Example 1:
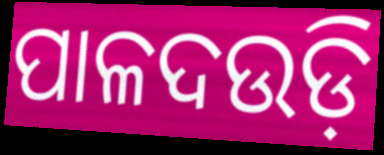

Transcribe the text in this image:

ପାଳଦଉଡ଼ି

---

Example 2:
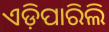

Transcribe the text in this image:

ଏଡ଼ିପାରିଲି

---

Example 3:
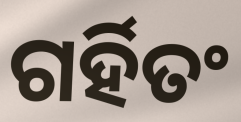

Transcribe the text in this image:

ଗର୍ହିତଂ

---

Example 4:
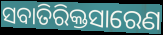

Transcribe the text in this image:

ସବାତିରିକ୍ତସାରେଣ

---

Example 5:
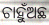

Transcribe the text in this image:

ଚାହୁଁଅଛ